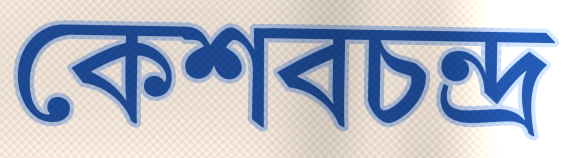
কেশবচন্দ্র